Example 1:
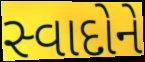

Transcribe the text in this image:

સ્વાદોને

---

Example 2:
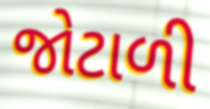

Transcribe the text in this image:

જોટાળી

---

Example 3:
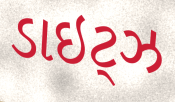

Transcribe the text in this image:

ડાઇટ્ઝ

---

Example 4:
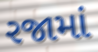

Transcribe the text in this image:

રજામાં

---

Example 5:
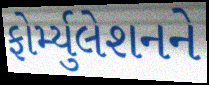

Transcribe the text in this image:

ફોર્મ્યુલેશનને